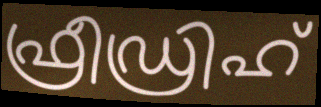
ഫ്രീഡ്രിഹ്